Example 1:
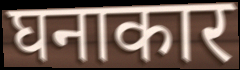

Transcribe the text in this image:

घनाकार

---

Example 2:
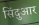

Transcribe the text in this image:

सिंदुआर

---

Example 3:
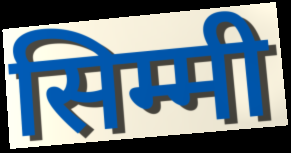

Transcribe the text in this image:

सिम्मी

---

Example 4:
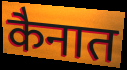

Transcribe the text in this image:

कैनात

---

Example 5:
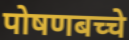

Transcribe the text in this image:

पोषणबच्चे